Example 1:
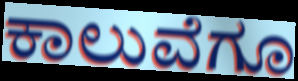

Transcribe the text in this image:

ಕಾಲುವೆಗೂ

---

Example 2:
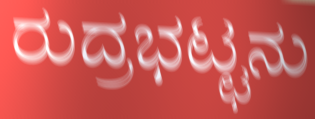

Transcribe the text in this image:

ರುದ್ರಭಟ್ಟನು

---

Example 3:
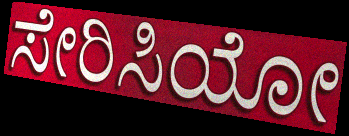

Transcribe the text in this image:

ಸೇರಿಸಿಯೋ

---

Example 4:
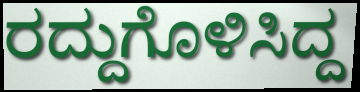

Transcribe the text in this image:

ರದ್ದುಗೊಳಿಸಿದ್ದ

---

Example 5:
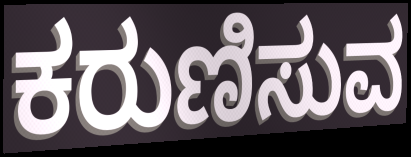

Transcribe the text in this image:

ಕರುಣಿಸುವ